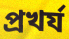
প্রখর্য